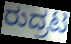
ರುದ್ರಟ